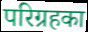
परिग्रहका